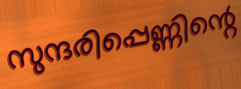
സുന്ദരിപ്പെണ്ണിന്റെ